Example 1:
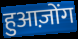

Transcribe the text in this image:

हुआज़ोंग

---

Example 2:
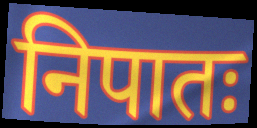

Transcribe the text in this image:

निपातः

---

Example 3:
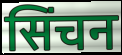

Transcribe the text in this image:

सिंचन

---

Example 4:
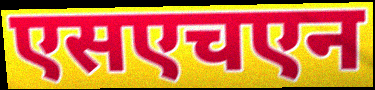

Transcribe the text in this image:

एसएचएन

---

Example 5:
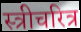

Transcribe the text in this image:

स्त्रीचरित्र